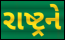
રાષ્ટ્રને